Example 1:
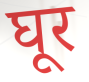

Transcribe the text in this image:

घूर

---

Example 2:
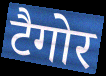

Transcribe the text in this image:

टैगोर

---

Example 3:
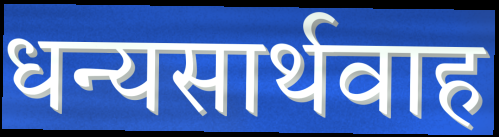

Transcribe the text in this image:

धन्यसार्थवाह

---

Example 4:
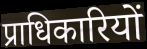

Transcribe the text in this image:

प्राधिकारियों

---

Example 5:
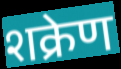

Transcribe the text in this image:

शक्रेण